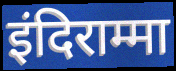
इंदिराम्मा